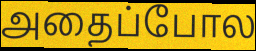
அதைப்போல